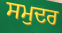
ਸਮੁਦਰ